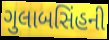
ગુલાબસિંહની